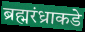
ब्रह्मरंध्राकडे